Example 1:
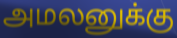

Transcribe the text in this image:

அமலனுக்கு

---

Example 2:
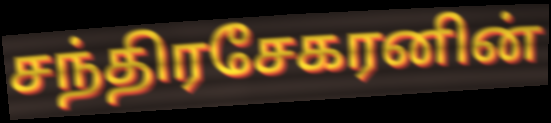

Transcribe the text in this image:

சந்திரசேகரனின்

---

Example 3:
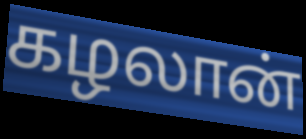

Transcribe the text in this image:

கழலான்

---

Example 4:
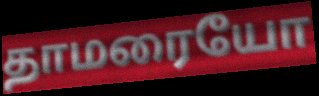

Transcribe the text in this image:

தாமரையோ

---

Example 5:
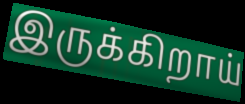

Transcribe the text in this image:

இருக்கிறாய்